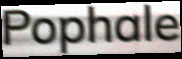
Pophale